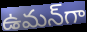
ఉమన్‌గా